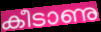
കീടാണു